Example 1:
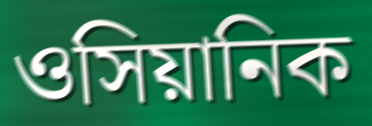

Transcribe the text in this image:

ওসিয়ানিক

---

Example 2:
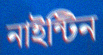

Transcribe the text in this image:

নাইন্টিন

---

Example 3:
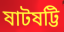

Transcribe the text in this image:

ষাটষট্টি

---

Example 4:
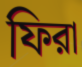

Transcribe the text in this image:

ফিরা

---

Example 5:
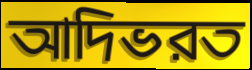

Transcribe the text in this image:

আদিভরত